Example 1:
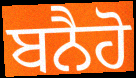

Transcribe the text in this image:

ਬਨੈਹੋ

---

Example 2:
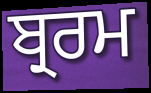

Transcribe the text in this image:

ਬ੍ਰਰਮ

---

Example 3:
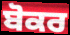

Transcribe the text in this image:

ਬੋਕਰ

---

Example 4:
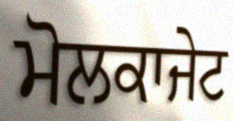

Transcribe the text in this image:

ਮੋਲਕਾਜੇਟ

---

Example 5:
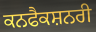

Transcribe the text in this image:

ਕਨਫੈਕਸ਼ਨਰੀ